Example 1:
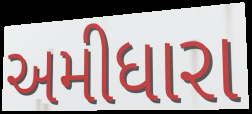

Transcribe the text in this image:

અમીધારા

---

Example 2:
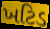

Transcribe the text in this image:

ખટિડ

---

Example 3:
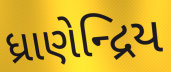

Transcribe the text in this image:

ધ્રાણેન્દ્રિય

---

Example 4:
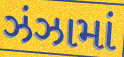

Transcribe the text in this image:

ઝંઝામાં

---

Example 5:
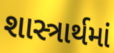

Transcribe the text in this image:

શાસ્ત્રાર્થમાં